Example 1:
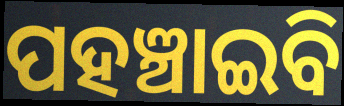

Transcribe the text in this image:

ପହଞ୍ଚାଇବି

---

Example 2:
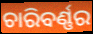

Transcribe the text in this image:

ଚାରିବର୍ଣ୍ଣର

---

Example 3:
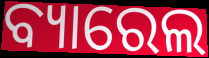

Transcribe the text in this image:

ବ୍ୟାରେଲ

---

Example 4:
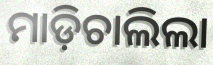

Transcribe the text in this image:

ମାଡ଼ିଚାଲିଲା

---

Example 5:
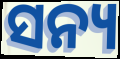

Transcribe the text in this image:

ସନ୍ୟ